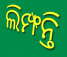
ଲିମ୍ଫନ୍ତି